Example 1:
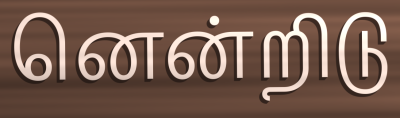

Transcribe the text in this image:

னென்றிடு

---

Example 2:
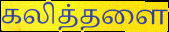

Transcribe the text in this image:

கலித்தளை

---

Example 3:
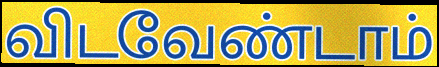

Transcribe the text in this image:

விடவேண்டாம்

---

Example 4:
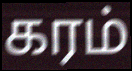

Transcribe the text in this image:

கரம்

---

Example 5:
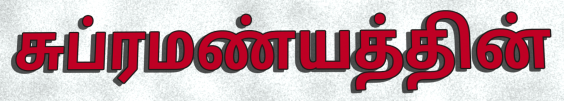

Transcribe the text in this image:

சுப்ரமண்யத்தின்